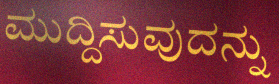
ಮುದ್ದಿಸುವುದನ್ನು